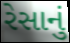
રેસાનું